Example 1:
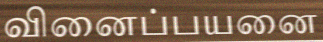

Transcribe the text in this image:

வினைப்பயனை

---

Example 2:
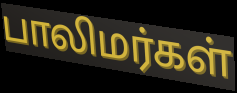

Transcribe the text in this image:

பாலிமர்கள்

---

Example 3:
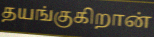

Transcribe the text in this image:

தயங்குகிறான்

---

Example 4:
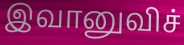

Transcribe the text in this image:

இவானுவிச்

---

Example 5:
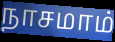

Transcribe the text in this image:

நாசமாம்